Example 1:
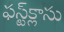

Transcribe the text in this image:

ఫస్ట్‌క్లాసు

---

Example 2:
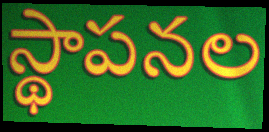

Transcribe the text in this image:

స్థాపనల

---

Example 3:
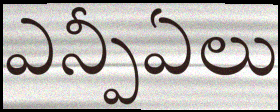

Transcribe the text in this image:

ఎన్పీఏలు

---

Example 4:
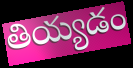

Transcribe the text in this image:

తియ్యడం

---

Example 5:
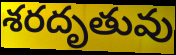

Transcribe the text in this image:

శరదృతువు